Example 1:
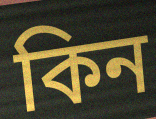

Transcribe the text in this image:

কিন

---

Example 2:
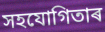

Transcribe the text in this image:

সহযোগিতাৰ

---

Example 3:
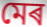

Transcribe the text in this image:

মেৰ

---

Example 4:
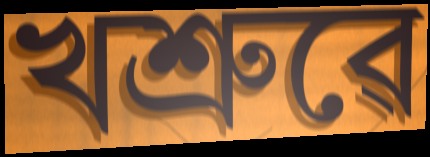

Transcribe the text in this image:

খশ্ৰুৱে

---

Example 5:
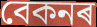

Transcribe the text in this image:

বেকনৰ